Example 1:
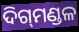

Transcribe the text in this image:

ଦିଗ୍‍ମଣ୍ଡଳ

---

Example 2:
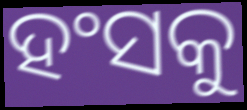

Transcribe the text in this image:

ହଂସକୁ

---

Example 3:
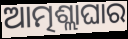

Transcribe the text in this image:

ଆତ୍ମଶ୍ଲାଘାର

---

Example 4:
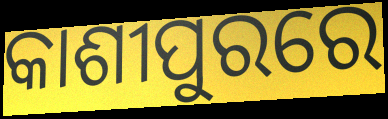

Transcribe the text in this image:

କାଶୀପୁରରେ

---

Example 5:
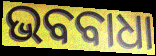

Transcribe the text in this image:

ଭବବାଧା